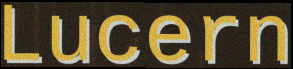
Lucern